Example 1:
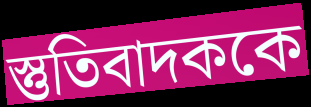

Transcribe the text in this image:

স্তুতিবাদককে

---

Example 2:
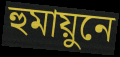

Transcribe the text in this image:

হুমায়ুনে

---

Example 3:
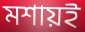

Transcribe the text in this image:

মশায়ই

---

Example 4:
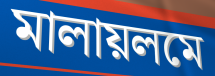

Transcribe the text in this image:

মালায়লমে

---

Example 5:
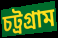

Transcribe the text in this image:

চট্রগ্রাম